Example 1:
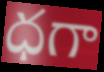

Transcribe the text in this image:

ధగా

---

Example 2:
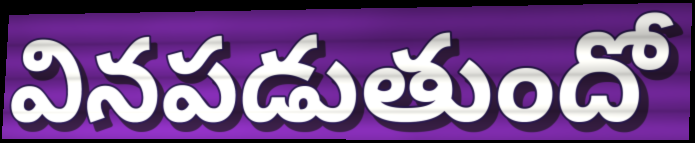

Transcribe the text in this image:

వినపడుతుందో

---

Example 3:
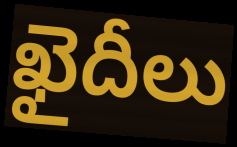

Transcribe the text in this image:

ఖైదీలు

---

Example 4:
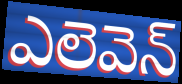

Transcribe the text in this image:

ఎలెవెన్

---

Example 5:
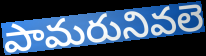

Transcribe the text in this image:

పామరునివలె